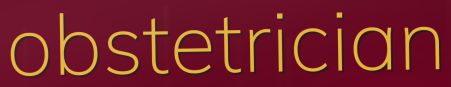
obstetrician